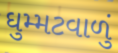
ઘુમ્મટવાળું